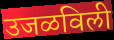
उजळविली